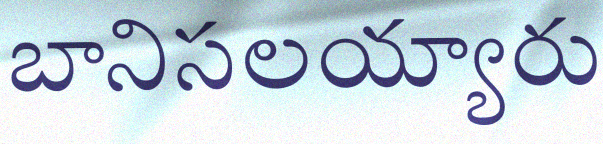
బానిసలయ్యారు